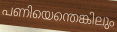
പണിയെന്തെങ്കിലും